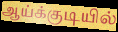
ஆய்க்குடியில்